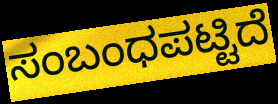
ಸಂಬಂಧಪಟ್ಟಿದೆ